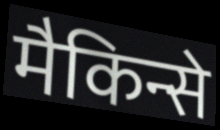
मैकिन्से